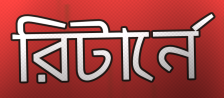
রিটার্নে